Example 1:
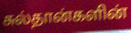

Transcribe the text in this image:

சுல்தான்களின்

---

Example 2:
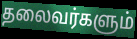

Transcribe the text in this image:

தலைவர்களும்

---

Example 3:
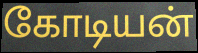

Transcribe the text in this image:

கோடியன்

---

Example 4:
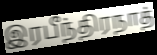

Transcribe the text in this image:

இரபீந்திரநாத்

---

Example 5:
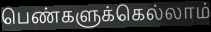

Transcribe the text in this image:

பெண்களுக்கெல்லாம்